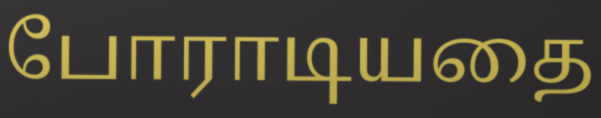
போராடியதை